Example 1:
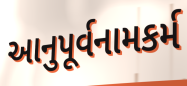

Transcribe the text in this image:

આનુપૂર્વનામકર્મ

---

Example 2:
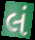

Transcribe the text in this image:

લં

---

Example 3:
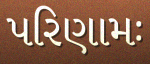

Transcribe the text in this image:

પરિણામઃ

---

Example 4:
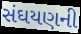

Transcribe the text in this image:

સંઘયણની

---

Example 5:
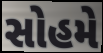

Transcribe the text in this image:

સોહમે